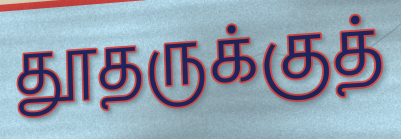
தூதருக்குத்